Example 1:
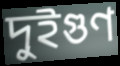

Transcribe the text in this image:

দুইগুণ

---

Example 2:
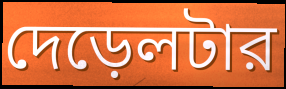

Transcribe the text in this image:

দেড়েলটার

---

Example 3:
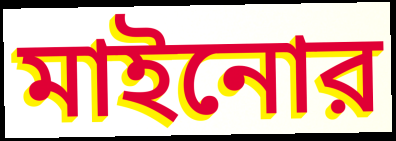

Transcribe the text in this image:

মাইনোর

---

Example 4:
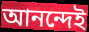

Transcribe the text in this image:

আনন্দেই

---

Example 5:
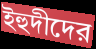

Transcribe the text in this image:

ইহুদীদের